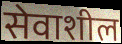
सेवाशील